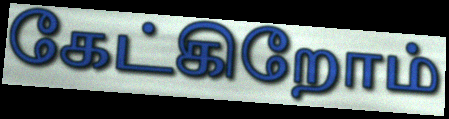
கேட்கிறோம்